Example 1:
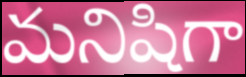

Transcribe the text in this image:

మనిషిగా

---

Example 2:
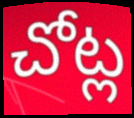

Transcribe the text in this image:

చోట్ల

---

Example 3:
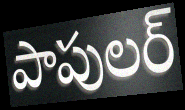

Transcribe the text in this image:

పాపులర్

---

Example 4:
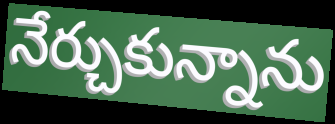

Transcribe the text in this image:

నేర్చుకున్నాను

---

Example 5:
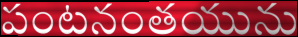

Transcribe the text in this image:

పంటనంతయును